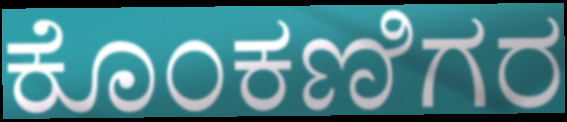
ಕೊಂಕಣಿಗರ